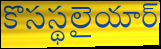
కొసస్థలైయార్